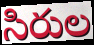
సిరుల